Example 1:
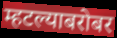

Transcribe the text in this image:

म्हटल्याबरोबर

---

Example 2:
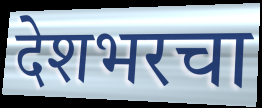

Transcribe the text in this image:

देशभरचा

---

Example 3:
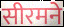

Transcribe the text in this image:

सीरमने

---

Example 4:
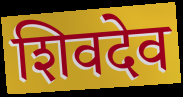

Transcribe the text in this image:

शिवदेव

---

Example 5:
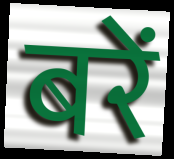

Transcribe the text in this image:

बरें